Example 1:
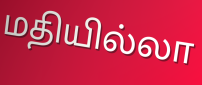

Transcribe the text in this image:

மதியில்லா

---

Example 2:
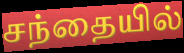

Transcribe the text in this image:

சந்தையில்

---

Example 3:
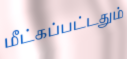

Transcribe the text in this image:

மீட்கப்பட்டதும்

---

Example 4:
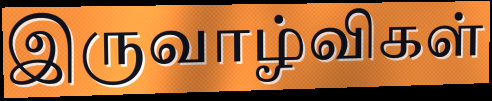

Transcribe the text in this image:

இருவாழ்விகள்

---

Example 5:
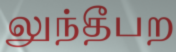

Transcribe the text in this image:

லுந்தீபற